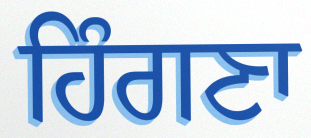
ਹਿੰਗਣਾ